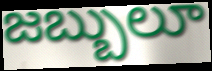
జబ్బులూ